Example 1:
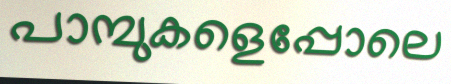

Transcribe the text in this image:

പാമ്പുകളെപ്പോലെ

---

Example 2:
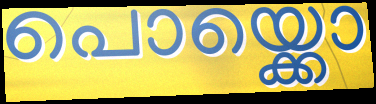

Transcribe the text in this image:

പൊയ്ക്കൊ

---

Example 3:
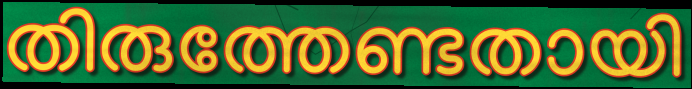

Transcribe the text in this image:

തിരുത്തേണ്ടതായി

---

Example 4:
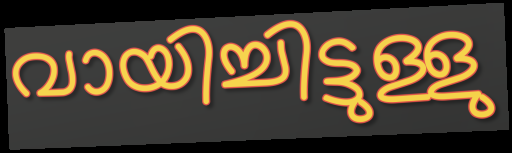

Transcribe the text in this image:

വായിച്ചിട്ടുള്ളു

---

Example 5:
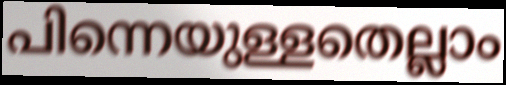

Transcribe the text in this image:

പിന്നെയുള്ളതെല്ലാം